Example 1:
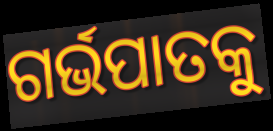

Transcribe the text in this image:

ଗର୍ଭପାତକୁ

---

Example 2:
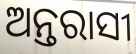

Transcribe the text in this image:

ଅନ୍ତରାସୀ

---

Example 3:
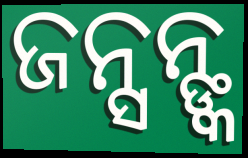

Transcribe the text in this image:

ଜନ୍ସନ୍ଙ୍କ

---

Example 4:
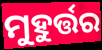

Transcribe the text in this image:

ମୁହୁର୍ତ୍ତର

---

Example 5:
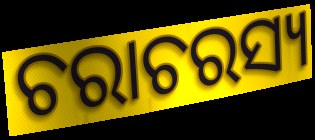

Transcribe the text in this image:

ଚରାଚରସ୍ୟ